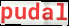
pudal